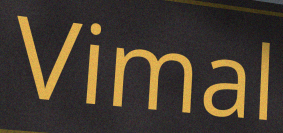
Vimal